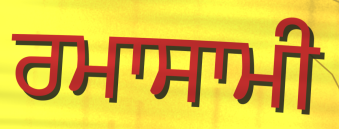
ਰਮਾਸਾਮੀ